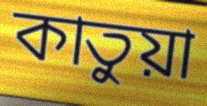
কাতুয়া